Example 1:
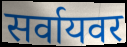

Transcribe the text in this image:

सर्वायवर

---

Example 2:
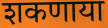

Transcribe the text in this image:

शकणाया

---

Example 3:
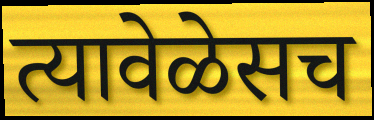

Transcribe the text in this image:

त्यावेळेसच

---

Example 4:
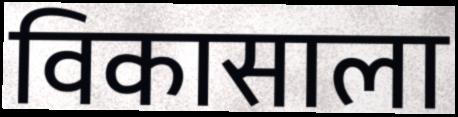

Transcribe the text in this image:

विकासाला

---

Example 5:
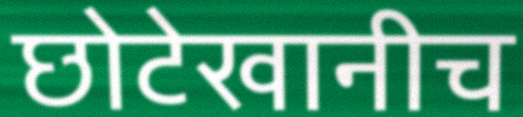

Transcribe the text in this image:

छोटेखानीच